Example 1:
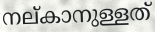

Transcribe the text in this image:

നല്കാനുള്ളത്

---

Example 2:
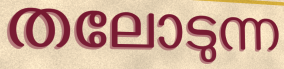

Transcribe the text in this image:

തലോടുന്ന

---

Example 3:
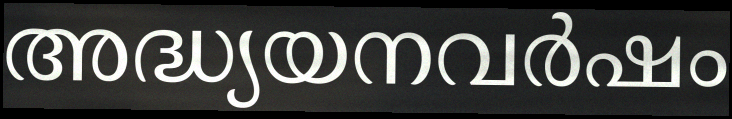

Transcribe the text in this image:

അദ്ധ്യയനവർഷം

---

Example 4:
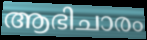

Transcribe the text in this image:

ആഭിചാരം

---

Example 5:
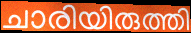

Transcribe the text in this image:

ചാരിയിരുത്തി